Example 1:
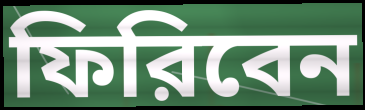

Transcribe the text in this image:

ফিরিবেন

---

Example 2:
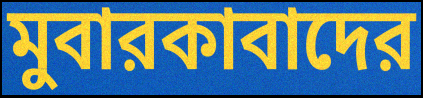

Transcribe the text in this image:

মুবারকাবাদের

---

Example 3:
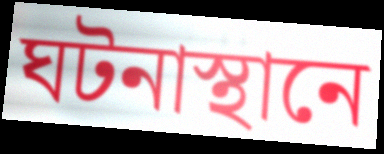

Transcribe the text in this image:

ঘটনাস্থানে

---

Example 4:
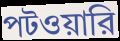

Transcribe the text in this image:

পটওয়ারি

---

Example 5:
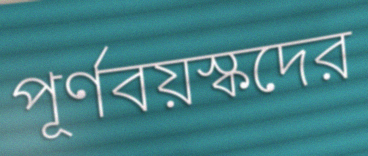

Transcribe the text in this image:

পূর্ণবয়স্কদের